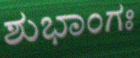
ಶುಭಾಂಗಃ